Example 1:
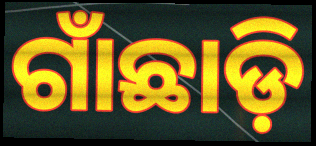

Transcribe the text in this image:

ଗାଁଛାଡ଼ି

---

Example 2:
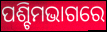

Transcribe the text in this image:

ପଶ୍ଚିମଭାଗରେ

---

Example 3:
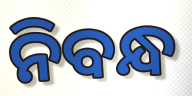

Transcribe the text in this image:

ନିବନ୍ଧ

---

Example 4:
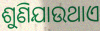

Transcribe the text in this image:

ଶୁଣିଯାଉଥାଏ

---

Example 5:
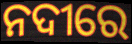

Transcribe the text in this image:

ନଦୀରେ